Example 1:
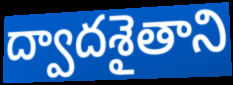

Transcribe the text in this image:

ద్వాదశైతాని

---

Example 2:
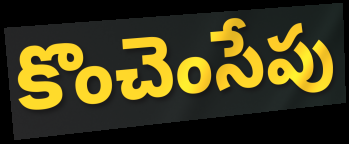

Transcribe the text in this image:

కొంచెంసేపు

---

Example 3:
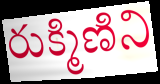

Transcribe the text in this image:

రుక్మిణిని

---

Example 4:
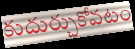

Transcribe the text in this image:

కుదుర్చుకోవటం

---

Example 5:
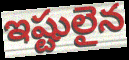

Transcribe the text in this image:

ఇష్టులైన